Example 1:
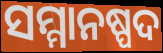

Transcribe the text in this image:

ସମ୍ମାନଷ୍ପଦ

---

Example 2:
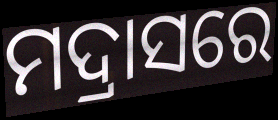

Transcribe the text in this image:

ମଦ୍ରାସରେ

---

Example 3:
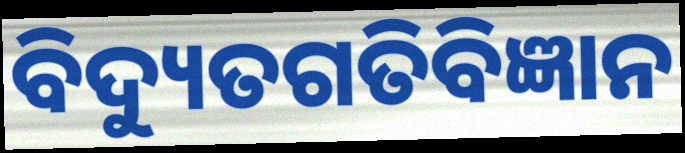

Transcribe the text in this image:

ବିଦ୍ୟୁତଗତିବିଜ୍ଞାନ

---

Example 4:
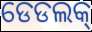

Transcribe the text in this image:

ଡେଡଲକ୍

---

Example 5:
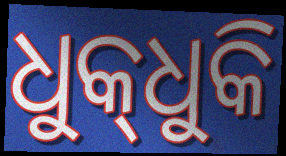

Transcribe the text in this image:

ଧୁକ୍‌ଧୁକି